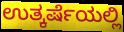
ಉತ್ಕರ್ಷೆಯಲ್ಲಿ